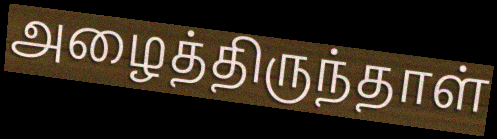
அழைத்திருந்தாள்